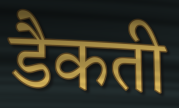
डैकती